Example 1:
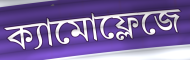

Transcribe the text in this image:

ক্যামোফ্লেজে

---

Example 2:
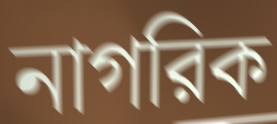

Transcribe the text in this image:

নাগরিক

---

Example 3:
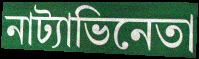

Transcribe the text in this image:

নাট্যাভিনেতা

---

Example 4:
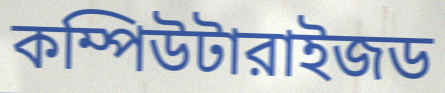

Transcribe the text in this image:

কম্পিউটারাইজড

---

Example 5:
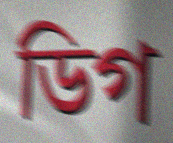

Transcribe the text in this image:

ডিগ